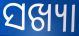
ସଖ୍ୟା